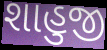
શાહુજી